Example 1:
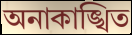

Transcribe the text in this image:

অনাকাঙ্খিত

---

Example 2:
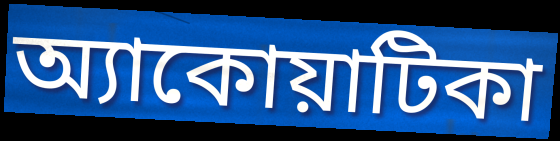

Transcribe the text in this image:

অ্যাকোয়াটিকা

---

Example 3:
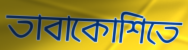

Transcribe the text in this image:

তাবাকোশিতে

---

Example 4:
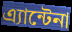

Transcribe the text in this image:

এ্যান্টেনা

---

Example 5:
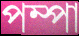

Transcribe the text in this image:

পম্পা